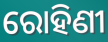
ରୋହିଣୀ